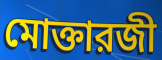
মোক্তারজী